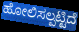
ಹೋಲಿಸಲ್ಪಟ್ಟಿದೆ